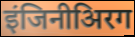
इंजिनीअिरग